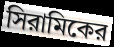
সিরামিকের